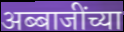
अब्बाजींच्या